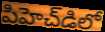
పిహెచ్‌డిలో